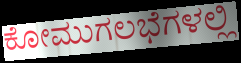
ಕೋಮುಗಲಭೆಗಳಲ್ಲಿ